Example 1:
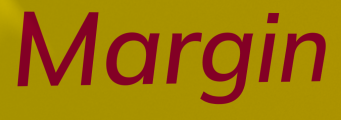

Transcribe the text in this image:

Margin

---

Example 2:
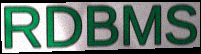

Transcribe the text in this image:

RDBMS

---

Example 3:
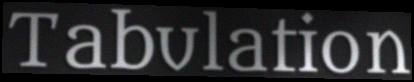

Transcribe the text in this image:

Tabulation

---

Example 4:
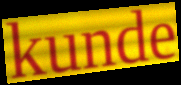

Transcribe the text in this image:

kunde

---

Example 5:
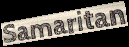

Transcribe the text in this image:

Samaritan